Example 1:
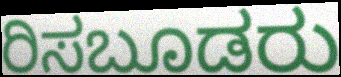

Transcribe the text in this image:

ರಿಸಬೂಡರು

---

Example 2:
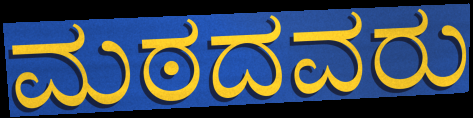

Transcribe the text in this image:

ಮಠದವರು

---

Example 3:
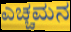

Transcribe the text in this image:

ಎಚ್ಚಮನ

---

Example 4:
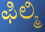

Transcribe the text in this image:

ಫಿಲ್ಮಿ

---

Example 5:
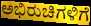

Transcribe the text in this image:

ಅಭಿರುಚಿಗಳಿಗೆ